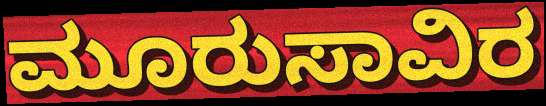
ಮೂರುಸಾವಿರ